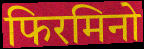
फिरमिनो